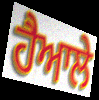
ਹੈਆਲੇ